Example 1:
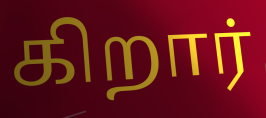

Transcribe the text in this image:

கிறார்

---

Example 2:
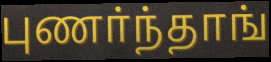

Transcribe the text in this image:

புணர்ந்தாங்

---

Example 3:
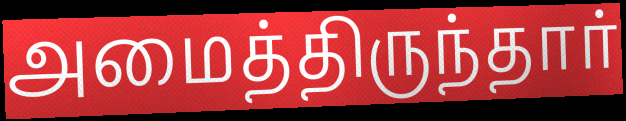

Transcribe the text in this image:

அமைத்திருந்தார்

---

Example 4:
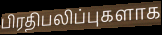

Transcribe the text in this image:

பிரதிபலிப்புகளாக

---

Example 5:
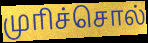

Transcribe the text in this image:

முரிச்சொல்